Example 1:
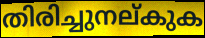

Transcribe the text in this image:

തിരിച്ചുനല്കുക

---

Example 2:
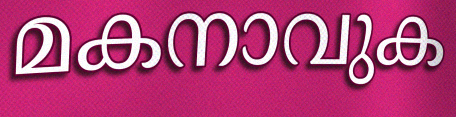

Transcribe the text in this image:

മകനാവുക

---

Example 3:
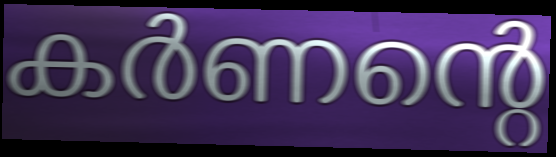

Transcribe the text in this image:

കർണന്റെ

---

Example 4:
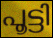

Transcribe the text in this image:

പൂട്ടി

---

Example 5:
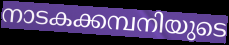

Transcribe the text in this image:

നാടകക്കമ്പനിയുടെ